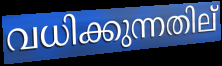
വധിക്കുന്നതില്